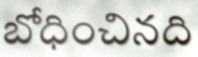
బోధించినది